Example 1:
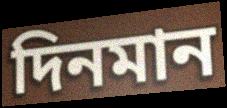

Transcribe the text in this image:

দিনমান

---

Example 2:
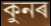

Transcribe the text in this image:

কুনৰ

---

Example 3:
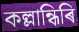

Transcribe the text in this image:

কল্লান্ধিৰি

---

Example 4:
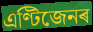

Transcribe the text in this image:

এণ্টিজেনৰ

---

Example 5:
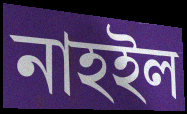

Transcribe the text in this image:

নাহইল